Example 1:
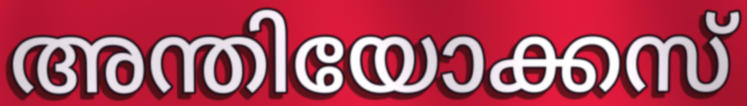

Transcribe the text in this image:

അന്തിയോക്കസ്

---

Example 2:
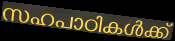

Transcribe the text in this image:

സഹപാഠികൾക്ക്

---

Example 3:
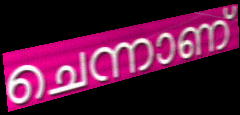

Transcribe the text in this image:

ചെന്നാണ്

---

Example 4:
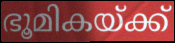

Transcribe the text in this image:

ഭൂമികയ്ക്ക്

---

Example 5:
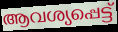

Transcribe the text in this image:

ആവശ്യപ്പെട്ട്